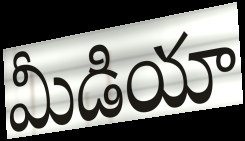
మీడియా